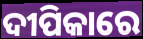
ଦୀପିକାରେ